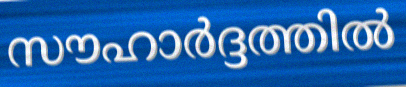
സൗഹാർദ്ദത്തിൽ